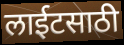
लाईटसाठी